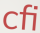
cfi